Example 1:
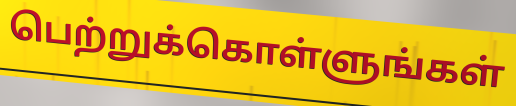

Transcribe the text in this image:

பெற்றுக்கொள்ளுங்கள்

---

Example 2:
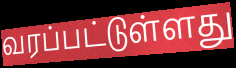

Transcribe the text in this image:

வரப்பட்டுள்ளது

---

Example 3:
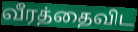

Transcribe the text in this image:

வீரத்தைவிட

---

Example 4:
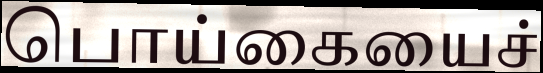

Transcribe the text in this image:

பொய்கையைச்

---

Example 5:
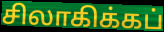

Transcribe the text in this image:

சிலாகிக்கப்